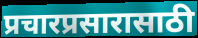
प्रचारप्रसारासाठी